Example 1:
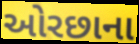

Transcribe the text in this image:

ઓરછાના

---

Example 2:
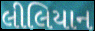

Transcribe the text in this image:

લીલિયાન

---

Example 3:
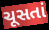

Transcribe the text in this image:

ચૂસતાં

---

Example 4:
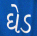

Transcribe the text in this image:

ઘેડ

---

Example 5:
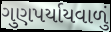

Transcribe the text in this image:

ગુણપર્યાયવાળું